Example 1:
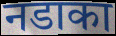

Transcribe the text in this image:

नडाका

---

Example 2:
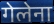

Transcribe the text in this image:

गेलेना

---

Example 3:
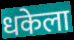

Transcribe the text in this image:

धकेला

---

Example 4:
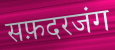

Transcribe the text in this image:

सफ़दरजंग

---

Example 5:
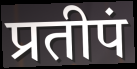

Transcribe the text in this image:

प्रतीपं